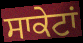
ਸਾਕੇਟਾਂ